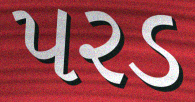
પરડ